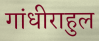
गांधीराहुल